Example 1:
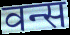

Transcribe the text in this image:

वन्स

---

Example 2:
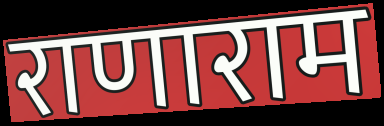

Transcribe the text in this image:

राणाराम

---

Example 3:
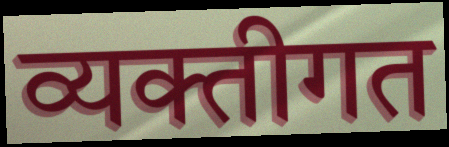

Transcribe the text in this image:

व्यक्तीगत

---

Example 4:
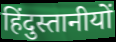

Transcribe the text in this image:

हिंदुस्तानीयों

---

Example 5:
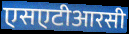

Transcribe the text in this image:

एसएटीआरसी